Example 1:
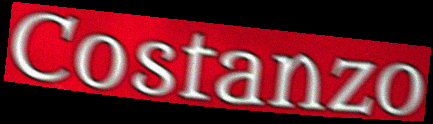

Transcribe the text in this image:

Costanzo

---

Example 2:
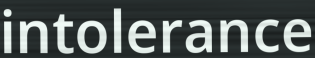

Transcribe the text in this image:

intolerance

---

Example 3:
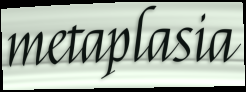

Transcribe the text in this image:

metaplasia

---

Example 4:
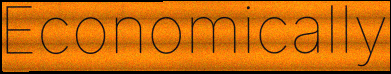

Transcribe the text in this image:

Economically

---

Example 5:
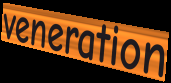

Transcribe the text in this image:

veneration